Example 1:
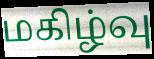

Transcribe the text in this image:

மகிழ்வு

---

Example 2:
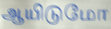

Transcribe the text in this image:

ஆயிடுமோ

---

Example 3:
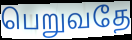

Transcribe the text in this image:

பெறுவதே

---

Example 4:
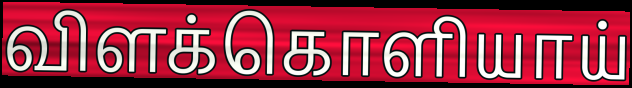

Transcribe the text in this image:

விளக்கொளியாய்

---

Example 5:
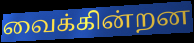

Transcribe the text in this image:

வைக்கின்றன